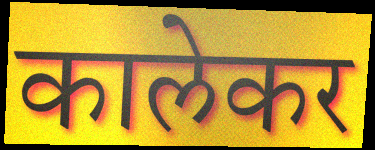
कालेकर